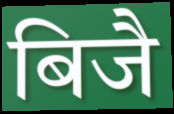
बिजै